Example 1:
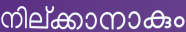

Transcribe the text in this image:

നില്ക്കാനാകും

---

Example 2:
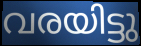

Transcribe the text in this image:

വരയിട്ടു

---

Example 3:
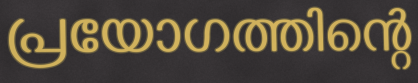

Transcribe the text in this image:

പ്രയോഗത്തിന്റെ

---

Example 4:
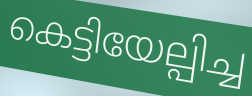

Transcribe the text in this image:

കെട്ടിയേല്പിച്ച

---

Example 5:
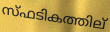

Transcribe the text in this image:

സ്ഫടികത്തില്